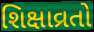
શિક્ષાવ્રતો